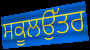
ਸਕੂਲਉੱਤਰ